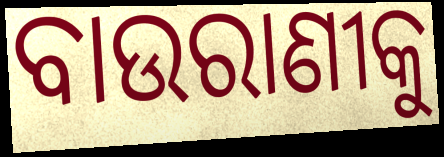
ବାଉରାଣୀକୁ